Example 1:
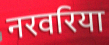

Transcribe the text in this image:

नरवरिया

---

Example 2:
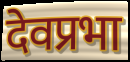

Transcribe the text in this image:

देवप्रभा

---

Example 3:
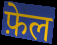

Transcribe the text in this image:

फ़ेल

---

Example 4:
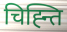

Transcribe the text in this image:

चिह्न्ति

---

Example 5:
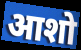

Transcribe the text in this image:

आशो